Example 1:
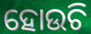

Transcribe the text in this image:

ହୋଉଚି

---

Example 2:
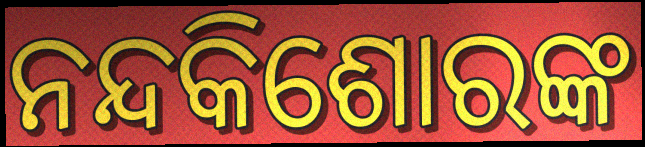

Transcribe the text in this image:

ନନ୍ଦକିଶୋରଙ୍କ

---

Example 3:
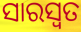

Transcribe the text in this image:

ସାରସ୍ବତ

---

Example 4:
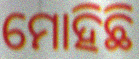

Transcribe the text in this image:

ମୋହିଛି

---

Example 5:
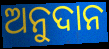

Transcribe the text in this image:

ଅନୁଦାନ